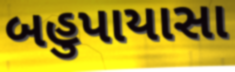
બહુપાયાસા